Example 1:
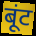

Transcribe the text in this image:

बूंट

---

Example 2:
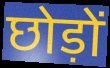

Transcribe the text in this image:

छोड़ों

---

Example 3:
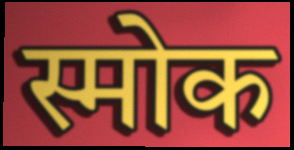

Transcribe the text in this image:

स्मोक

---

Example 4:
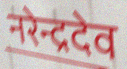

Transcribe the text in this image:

नरेन्द्रदेव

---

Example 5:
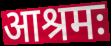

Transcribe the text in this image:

आश्रमः